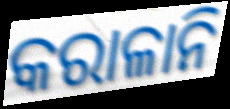
କରାଳାନି